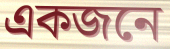
একজনে